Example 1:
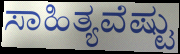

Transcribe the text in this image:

ಸಾಹಿತ್ಯವೆಷ್ಟು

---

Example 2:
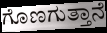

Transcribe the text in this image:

ಗೊಣಗುತ್ತಾನೆ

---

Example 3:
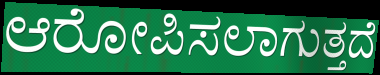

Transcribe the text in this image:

ಆರೋಪಿಸಲಾಗುತ್ತದೆ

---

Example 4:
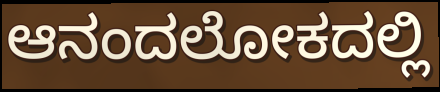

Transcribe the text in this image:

ಆನಂದಲೋಕದಲ್ಲಿ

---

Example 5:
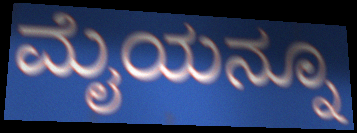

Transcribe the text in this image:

ಮೈಯನ್ನೂ